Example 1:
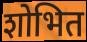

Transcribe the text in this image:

शोभित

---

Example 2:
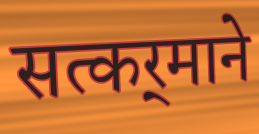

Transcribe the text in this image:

सत्कर्माने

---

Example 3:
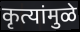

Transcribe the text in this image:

कृत्यांमुळे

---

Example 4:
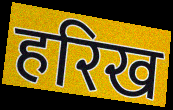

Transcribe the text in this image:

हरिख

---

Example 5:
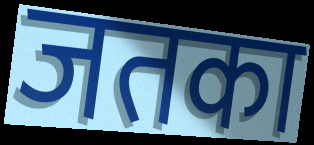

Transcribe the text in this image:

जतका